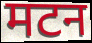
मटन